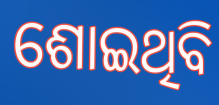
ଶୋଇଥିବି